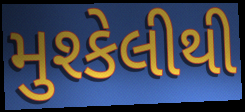
મુશ્કેલીથી